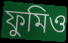
ফুমিও